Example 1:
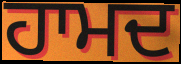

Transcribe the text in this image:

ਹਾਮਦ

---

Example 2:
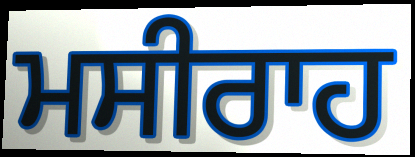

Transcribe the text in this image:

ਮਸੀਰਾਹ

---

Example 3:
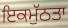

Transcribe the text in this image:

ਇਕਮੁੱਠਤਾ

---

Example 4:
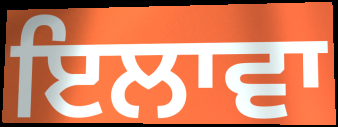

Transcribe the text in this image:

ਇਲਾਵਾ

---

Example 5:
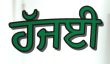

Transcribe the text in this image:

ਹੱਜਈ